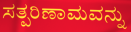
ಸತ್ಪರಿಣಾಮವನ್ನು